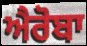
ਐਰੋਬਾ